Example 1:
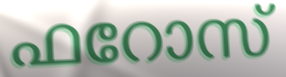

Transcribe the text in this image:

ഫറോസ്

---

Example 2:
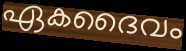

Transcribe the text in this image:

ഏകദൈവം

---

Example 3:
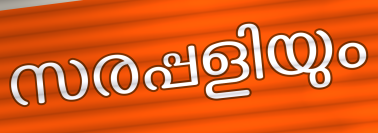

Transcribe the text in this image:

സരപ്പളിയും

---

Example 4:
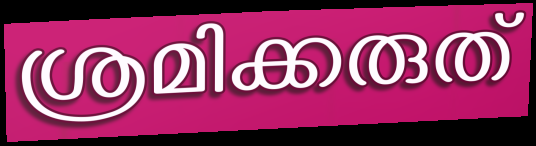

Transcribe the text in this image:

ശ്രമിക്കരുത്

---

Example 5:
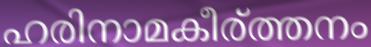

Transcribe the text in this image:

ഹരിനാമകീര്ത്തനം